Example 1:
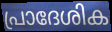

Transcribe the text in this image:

പ്രാദേശിക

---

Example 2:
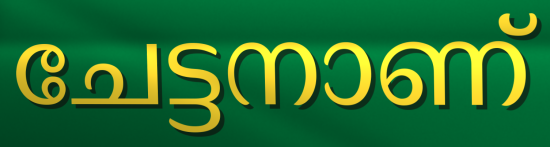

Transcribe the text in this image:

ചേട്ടനാണ്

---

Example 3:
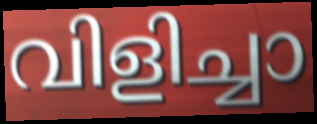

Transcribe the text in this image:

വിളിച്ചാ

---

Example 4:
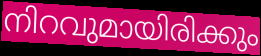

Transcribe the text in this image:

നിറവുമായിരിക്കും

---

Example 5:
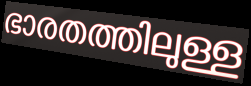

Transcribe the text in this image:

ഭാരതത്തിലുള്ള